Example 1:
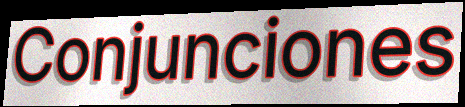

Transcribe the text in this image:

Conjunciones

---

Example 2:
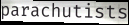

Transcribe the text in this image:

parachutists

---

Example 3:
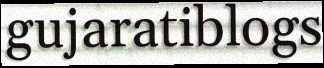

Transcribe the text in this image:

gujaratiblogs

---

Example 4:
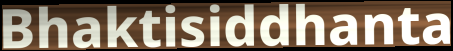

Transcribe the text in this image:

Bhaktisiddhanta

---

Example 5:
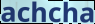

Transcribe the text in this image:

achcha